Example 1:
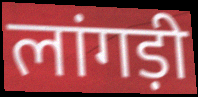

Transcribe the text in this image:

लांगड़ी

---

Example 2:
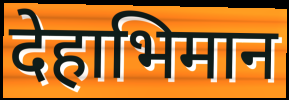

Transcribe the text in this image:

देहाभिमान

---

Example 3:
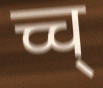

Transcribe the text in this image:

च्च्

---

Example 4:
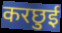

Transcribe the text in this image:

करछुई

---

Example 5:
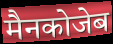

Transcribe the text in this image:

मैनकोजेब